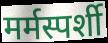
मर्मस्पर्शी